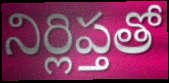
నిర్లిప్తతో